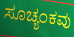
ಸೂಚ್ಯಂಕವು